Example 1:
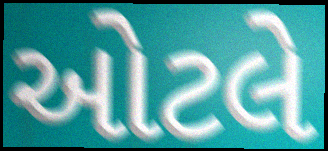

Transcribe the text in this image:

ઓટલે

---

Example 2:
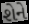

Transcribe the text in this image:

શેને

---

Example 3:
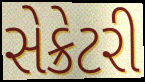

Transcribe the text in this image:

સેક્રેટરી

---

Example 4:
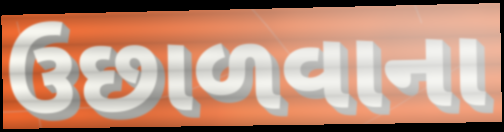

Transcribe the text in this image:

ઉછાળવાના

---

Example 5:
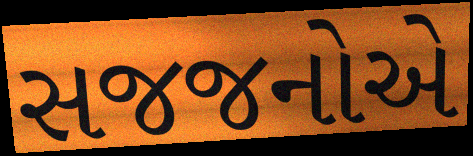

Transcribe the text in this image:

સજજનોએ